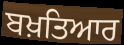
ਬਖ਼ਤਿਆਰ